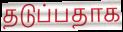
தடுப்பதாக